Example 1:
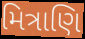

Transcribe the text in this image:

મિત્રાણિ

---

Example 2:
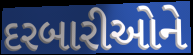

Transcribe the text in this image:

દરબારીઓને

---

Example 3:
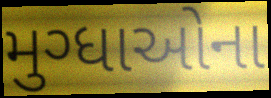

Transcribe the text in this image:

મુગ્ધાઓના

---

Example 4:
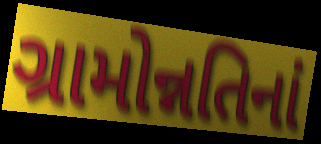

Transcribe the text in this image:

ગ્રામોન્નતિનાં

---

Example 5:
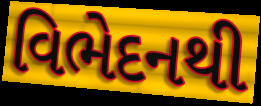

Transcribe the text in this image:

વિભેદનથી